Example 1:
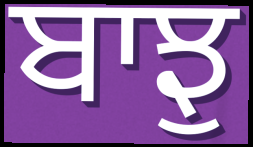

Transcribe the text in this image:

ਬਾਝੁ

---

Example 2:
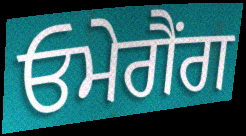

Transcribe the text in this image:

ਓਮੇਗੈਂਗ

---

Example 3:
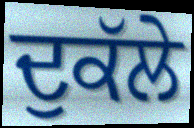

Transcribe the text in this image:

ਦੁਕੱਲੇ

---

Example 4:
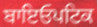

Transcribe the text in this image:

ਬਾਇਓਪਟਿਕ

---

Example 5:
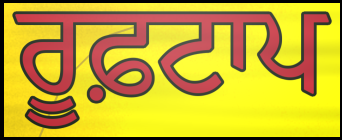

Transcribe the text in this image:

ਰੂਫ਼ਟਾਪ